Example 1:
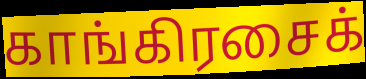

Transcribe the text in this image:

காங்கிரசைக்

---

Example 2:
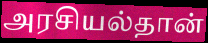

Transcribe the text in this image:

அரசியல்தான்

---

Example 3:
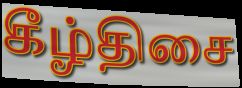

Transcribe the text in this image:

கீழ்திசை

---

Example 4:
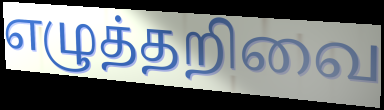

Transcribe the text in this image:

எழுத்தறிவை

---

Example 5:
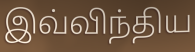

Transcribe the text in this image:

இவ்விந்திய